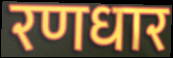
रणधार